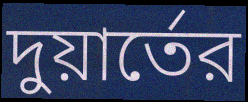
দুয়ার্তের